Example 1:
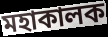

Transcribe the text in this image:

মহাকালক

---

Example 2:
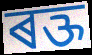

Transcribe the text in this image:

ৰক্ত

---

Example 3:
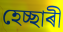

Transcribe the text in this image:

হেচ্ছাৰী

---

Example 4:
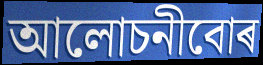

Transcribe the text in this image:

আলোচনীবোৰ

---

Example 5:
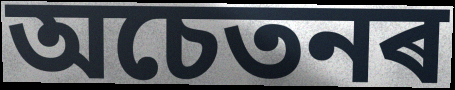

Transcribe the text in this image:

অচেতনৰ